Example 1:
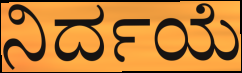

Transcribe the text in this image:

ನಿರ್ದಯೆ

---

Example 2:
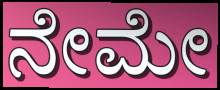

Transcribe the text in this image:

ನೇಮೇ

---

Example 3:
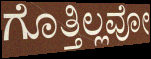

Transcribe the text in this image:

ಗೊತ್ತಿಲ್ಲವೋ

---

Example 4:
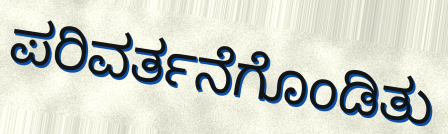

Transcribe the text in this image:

ಪರಿವರ್ತನೆಗೊಂಡಿತು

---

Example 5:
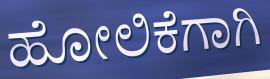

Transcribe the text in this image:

ಹೋಲಿಕೆಗಾಗಿ